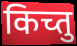
किच्तु